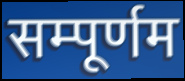
सम्पूर्णम